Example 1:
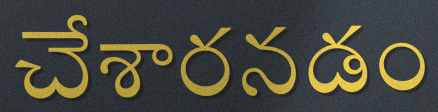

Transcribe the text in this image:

చేశారనడం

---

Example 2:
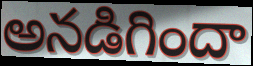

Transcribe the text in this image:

అనడిగిందా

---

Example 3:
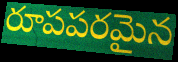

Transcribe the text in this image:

రూపపరమైన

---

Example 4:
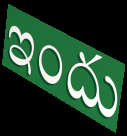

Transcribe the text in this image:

ఇందు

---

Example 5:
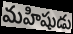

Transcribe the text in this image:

మహిషుడు